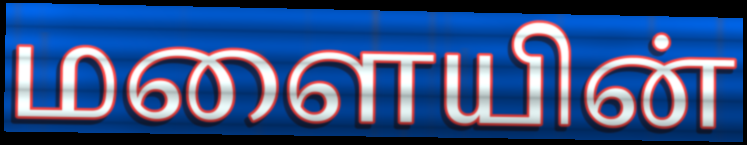
மளையின்